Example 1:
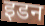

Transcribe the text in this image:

इडन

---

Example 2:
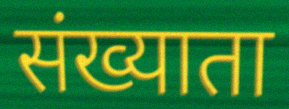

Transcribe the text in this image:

संख्याता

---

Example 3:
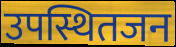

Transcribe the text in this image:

उपस्थितजन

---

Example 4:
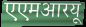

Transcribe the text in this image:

एएमआरयू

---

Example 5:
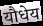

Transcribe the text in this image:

यौधेय